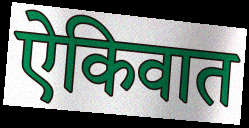
ऐकिवात